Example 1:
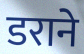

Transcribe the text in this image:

डराने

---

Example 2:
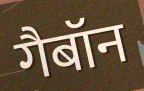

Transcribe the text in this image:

गैबॉन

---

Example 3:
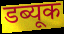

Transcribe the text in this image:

डब्यूक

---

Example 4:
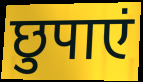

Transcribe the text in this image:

छुपाएं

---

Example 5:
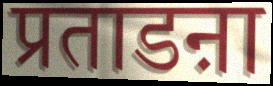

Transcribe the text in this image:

प्रताडऩा